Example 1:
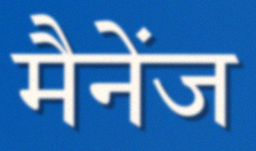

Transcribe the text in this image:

मैनेंज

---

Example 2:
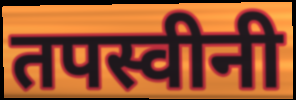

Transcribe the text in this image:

तपस्वीनी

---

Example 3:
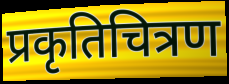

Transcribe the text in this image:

प्रकृतिचित्रण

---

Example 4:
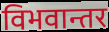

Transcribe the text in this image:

विभवान्तर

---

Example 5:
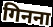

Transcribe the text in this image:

गिनना